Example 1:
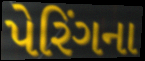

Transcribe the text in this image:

પેરિંગના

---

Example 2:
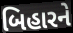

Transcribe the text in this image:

બિહારને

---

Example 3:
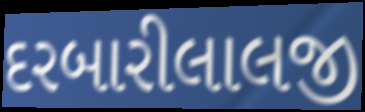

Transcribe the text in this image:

દરબારીલાલજી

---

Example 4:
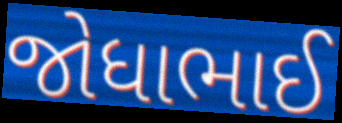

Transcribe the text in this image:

જોધાભાઈ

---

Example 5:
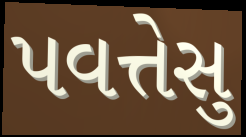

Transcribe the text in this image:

પવત્તેસુ